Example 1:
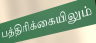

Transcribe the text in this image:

பத்திரிக்கையிலும்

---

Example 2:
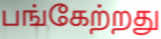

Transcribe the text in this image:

பங்கேற்றது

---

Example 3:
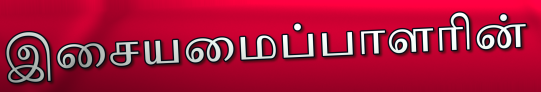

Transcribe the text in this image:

இசையமைப்பாளரின்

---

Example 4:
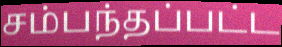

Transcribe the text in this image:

சம்பந்தப்பட்ட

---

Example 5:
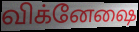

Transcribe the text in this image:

விக்னேஷை